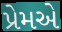
પ્રેમએ